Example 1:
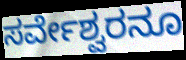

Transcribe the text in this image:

ಸರ್ವೇಶ್ವರನೂ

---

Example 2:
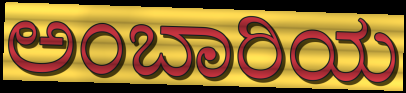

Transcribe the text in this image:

ಅಂಬಾರಿಯ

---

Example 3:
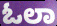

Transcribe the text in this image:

ಓಲಾ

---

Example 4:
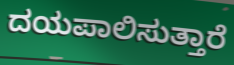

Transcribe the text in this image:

ದಯಪಾಲಿಸುತ್ತಾರೆ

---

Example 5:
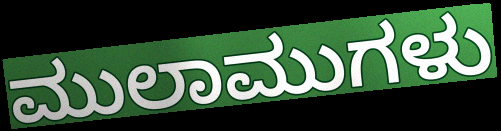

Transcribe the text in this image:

ಮುಲಾಮುಗಳು